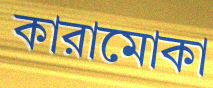
কারামোকা